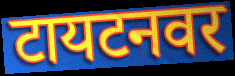
टायटनवर